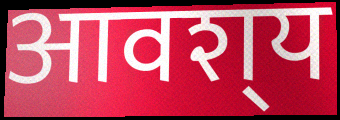
आवश्य